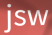
jsw